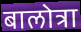
बालोत्रा